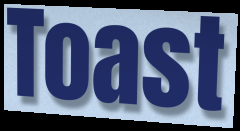
Toast